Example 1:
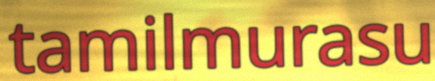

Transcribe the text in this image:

tamilmurasu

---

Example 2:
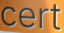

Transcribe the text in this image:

cert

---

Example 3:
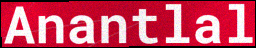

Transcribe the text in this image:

Anantlal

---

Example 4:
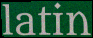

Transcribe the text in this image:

latin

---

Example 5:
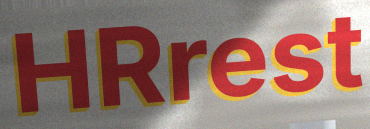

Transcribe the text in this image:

HRrest